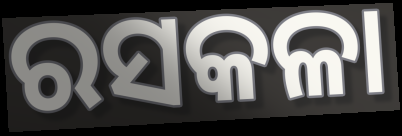
ରସକଳା